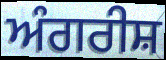
ਅੰਗਰੀਸ਼